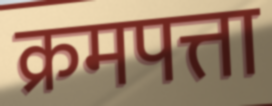
क्रमपत्ता